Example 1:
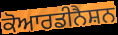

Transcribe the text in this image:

ਕੋਆਰਡੀਨੈਸ਼ਨ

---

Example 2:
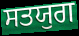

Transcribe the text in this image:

ਸਤਯੁਗ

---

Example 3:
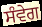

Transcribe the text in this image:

ਸੰਵੇਗ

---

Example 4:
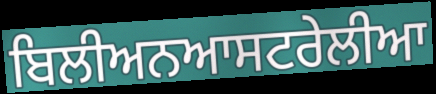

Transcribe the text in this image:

ਬਿਲੀਅਨਆਸਟਰੇਲੀਆ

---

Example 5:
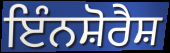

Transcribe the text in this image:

ਇੰਨਸ਼ੋਰੈਸ਼